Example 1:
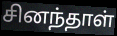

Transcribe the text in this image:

சினந்தாள்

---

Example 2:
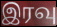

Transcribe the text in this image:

இரவு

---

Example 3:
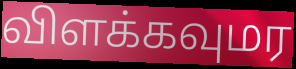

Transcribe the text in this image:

விளக்கவுமர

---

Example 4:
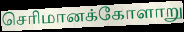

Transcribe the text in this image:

செரிமானக்கோளாறு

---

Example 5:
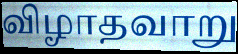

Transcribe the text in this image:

விழாதவாறு